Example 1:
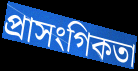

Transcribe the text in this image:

প্ৰাসংগিকতা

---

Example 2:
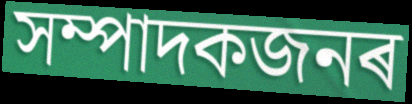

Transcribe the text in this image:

সম্পাদকজনৰ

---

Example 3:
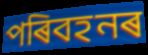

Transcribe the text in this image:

পৰিবহনৰ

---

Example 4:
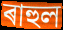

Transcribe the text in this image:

ৰাহুল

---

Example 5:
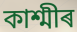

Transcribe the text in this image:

কাশ্মীৰ